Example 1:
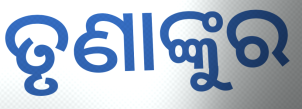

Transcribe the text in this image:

ତୃଣାଙ୍କୁର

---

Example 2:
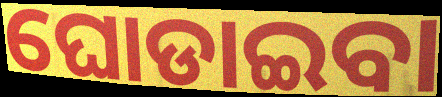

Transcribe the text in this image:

ଘୋଡାଇବା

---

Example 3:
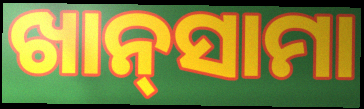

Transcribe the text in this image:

ଖାନ୍‍ସାମା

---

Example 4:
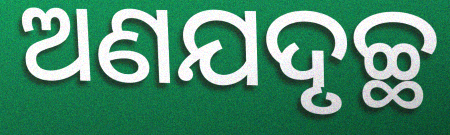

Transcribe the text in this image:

ଅଣଯଦୃଚ୍ଛ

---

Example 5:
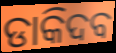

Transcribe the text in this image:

ଡାକିଦବ